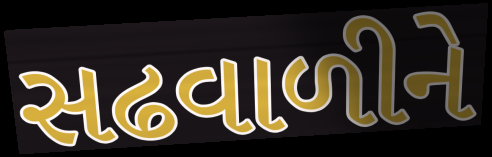
સઢવાળીને